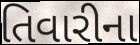
તિવારીના